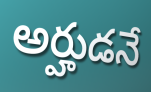
అర్హుడనే